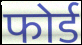
फोर्ड